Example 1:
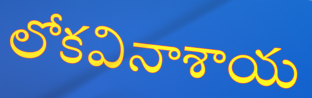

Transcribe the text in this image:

లోకవినాశాయ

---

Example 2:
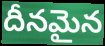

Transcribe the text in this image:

దీనమైన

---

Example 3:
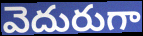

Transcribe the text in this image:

వెదురుగా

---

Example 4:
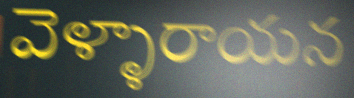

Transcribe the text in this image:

వెళ్ళారాయన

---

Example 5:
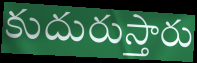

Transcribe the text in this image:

కుదురుస్తారు